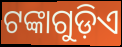
ଟଙ୍କାଗୁଡ଼ିଏ